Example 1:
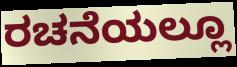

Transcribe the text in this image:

ರಚನೆಯಲ್ಲೂ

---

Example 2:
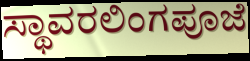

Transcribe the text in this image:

ಸ್ಥಾವರಲಿಂಗಪೂಜೆ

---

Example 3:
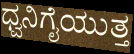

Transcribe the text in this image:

ಧ್ವನಿಗೈಯುತ್ತ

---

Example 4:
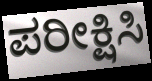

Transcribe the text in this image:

ಪರೀಕ್ಷಿಸಿ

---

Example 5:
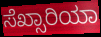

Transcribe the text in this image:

ಸೆಖ್ಸಾರಿಯಾ